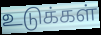
உடுக்கள்